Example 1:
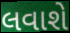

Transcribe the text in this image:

લવાશે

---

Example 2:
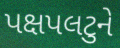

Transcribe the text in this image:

પક્ષપલટુને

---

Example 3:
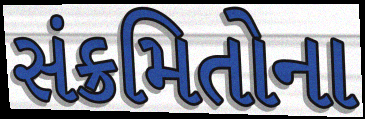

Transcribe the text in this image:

સંક્રમિતોના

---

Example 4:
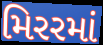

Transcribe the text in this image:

મિરરમાં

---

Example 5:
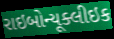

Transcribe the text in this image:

રાઇબોન્યૂક્લીઇક